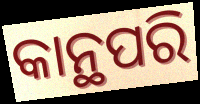
କାନ୍ଥପରି